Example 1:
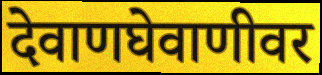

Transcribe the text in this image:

देवाणघेवाणीवर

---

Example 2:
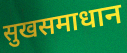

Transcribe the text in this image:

सुखसमाधान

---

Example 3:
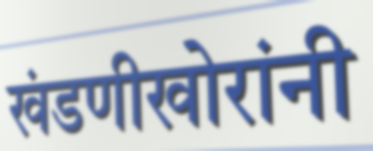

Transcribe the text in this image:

खंडणीखोरांनी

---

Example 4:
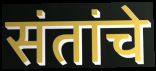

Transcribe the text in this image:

संतांचे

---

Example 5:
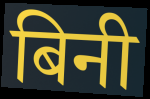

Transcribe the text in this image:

बिनी